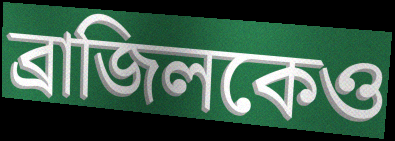
ব্রাজিলকেও